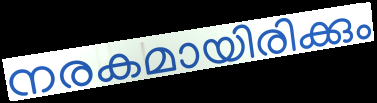
നരകമായിരിക്കും